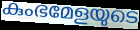
കുംഭമേളയുടെ